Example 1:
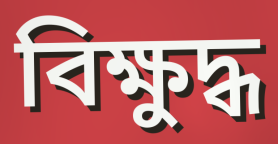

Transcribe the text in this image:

বিক্ষুদ্ধ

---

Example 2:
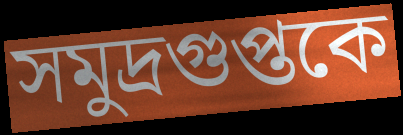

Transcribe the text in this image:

সমুদ্রগুপ্তকে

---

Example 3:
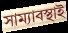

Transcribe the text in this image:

সাম্যাবস্থাই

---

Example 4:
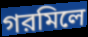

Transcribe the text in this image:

গরমিলে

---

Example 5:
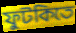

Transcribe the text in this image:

ফুটকিতে